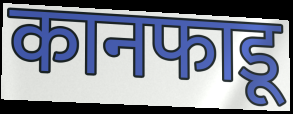
कानफाडू